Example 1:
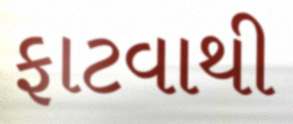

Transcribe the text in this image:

ફાટવાથી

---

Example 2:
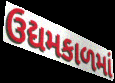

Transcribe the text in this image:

ઉદ્યમકાળમાં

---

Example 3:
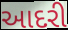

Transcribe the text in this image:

આદરી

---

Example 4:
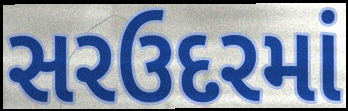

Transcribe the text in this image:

સરઉદરમાં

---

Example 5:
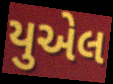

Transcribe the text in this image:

યુએલ